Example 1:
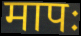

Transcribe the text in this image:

मापः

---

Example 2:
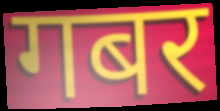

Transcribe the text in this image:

गबर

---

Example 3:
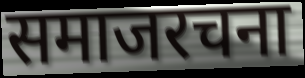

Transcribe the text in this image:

समाजरचना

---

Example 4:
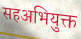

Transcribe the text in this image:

सहअभियुक्त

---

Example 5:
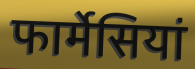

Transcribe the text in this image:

फार्मेसियां